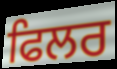
ਫਿਲਰ